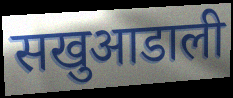
सखुआडाली